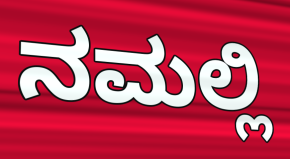
ನಮಲ್ಲಿ